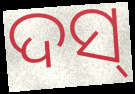
ଦସ୍